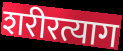
शरीरत्याग